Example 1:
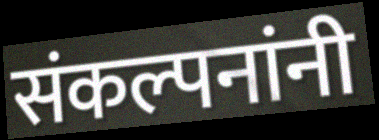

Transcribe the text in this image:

संकल्पनांनी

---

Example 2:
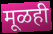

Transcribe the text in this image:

मूळही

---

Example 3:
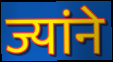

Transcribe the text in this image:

ज्यांने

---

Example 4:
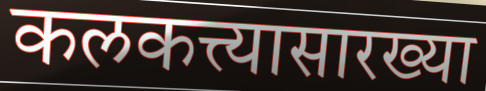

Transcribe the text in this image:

कलकत्त्यासारख्या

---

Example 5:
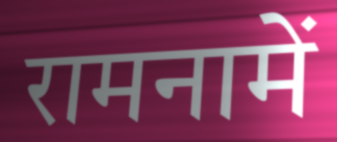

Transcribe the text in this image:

रामनामें